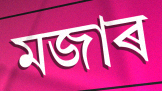
মজাৰ